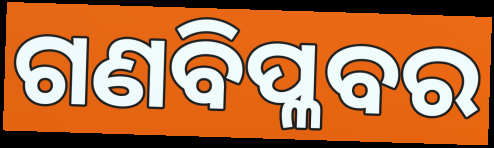
ଗଣବିପ୍ଳବର